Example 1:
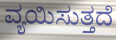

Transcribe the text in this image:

ವ್ಯಯಿಸುತ್ತದೆ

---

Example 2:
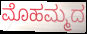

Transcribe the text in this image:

ಮೊಹಮ್ಮದ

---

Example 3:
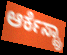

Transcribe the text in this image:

ಆರ್ಕೆಸ್ಟ್ರಾ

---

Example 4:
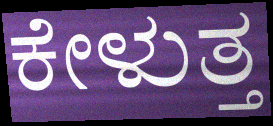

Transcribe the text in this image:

ಕೇಳುತ್ತ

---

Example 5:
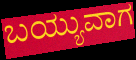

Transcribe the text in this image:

ಬಯ್ಯುವಾಗ